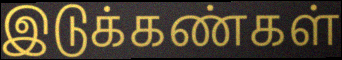
இடுக்கண்கள்